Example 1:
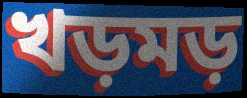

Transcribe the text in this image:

খড়মড়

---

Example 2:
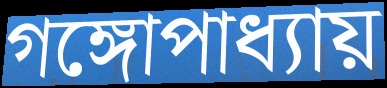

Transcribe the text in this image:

গঙ্গোপাধ্যায়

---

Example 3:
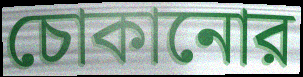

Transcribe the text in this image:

চোকানোর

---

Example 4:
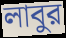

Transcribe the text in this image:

লাবুর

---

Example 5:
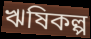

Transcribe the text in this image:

ঋষিকল্প